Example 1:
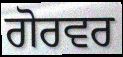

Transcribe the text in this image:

ਗੋਰਵਰ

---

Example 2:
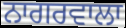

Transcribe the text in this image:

ਨਾਗਰਵਾਲਾ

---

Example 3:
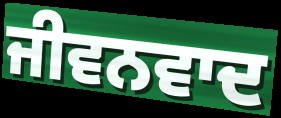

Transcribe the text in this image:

ਜੀਵਨਵਾਦ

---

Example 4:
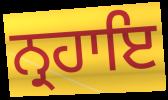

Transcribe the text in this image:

ਨ੍ਰਹਾਇ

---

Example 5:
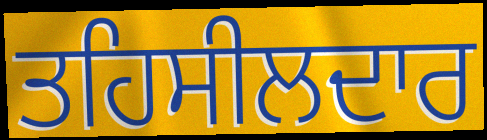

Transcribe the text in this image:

ਤਹਿਸੀਲਦਾਰ